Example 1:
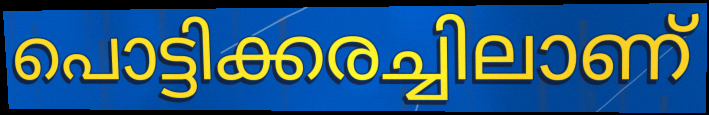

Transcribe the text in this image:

പൊട്ടിക്കരച്ചിലാണ്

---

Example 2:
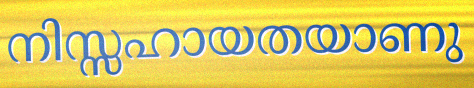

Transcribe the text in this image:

നിസ്സഹായതയാണു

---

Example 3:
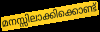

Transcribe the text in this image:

മനസ്സിലാക്കിക്കൊണ്ട്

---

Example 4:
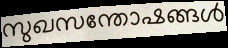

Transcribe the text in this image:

സുഖസന്തോഷങ്ങൾ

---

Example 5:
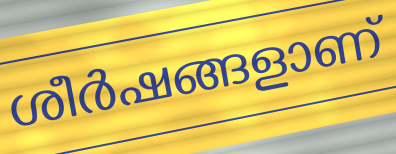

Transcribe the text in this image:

ശീർഷങ്ങളാണ്